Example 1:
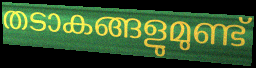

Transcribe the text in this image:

തടാകങ്ങളുമുണ്ട്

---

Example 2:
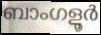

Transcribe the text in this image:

ബാംഗളൂർ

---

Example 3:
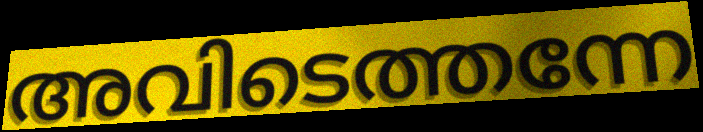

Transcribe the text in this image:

അവിടെത്തന്നേ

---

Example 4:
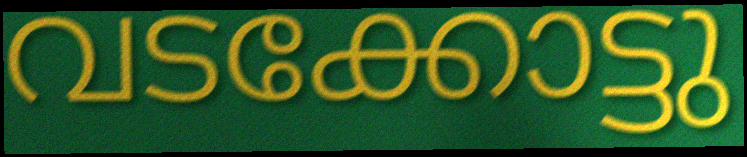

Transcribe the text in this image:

വടക്കോട്ടു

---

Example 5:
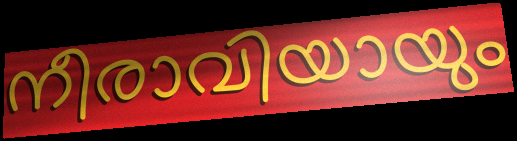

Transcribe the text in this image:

നീരാവിയായും